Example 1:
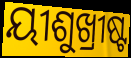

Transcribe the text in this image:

ୟୀଶୁଖ୍ରୀଷ୍ଟ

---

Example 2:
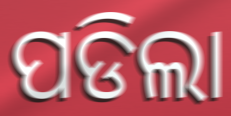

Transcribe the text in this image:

ପଡିଲା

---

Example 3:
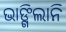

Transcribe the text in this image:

ଭାଙ୍ଗିଲାନି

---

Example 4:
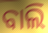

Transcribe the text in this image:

ବାଲି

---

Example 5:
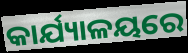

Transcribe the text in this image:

କାର୍ଯ୍ୟାଳୟରେ